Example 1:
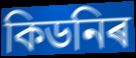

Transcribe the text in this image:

কিডনিৰ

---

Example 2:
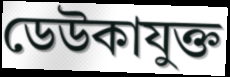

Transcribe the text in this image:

ডেউকাযুক্ত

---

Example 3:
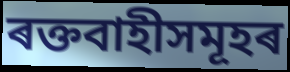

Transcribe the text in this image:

ৰক্তবাহীসমূহৰ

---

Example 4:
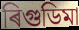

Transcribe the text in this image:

ৰিগুডিমা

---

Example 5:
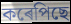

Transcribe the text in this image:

কৰেপিছে